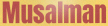
Musalman